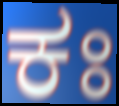
ಕಃ